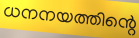
ധനനയത്തിന്റെ